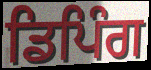
ਡਿਪਿੰਗ